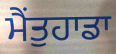
ਮੈਂਤੁਹਾਡਾ